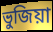
ভুজিয়া